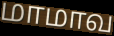
மாமாவ